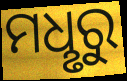
ମଧୢରୁ